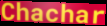
Chachar